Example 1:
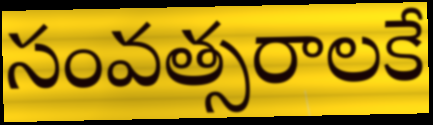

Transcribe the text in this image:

సంవత్సరాలకే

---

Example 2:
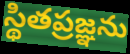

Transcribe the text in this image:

స్థితప్రజ్ఞను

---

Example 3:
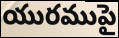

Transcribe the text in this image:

యురముపై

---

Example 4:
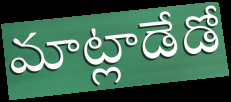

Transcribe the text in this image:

మాట్లాడేడో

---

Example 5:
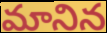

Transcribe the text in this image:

మానిన